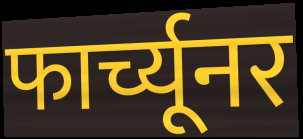
फार्च्यूनर